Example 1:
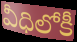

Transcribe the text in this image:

వీధిలోకీ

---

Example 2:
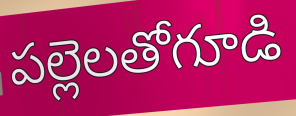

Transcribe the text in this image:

పల్లెలతోగూడి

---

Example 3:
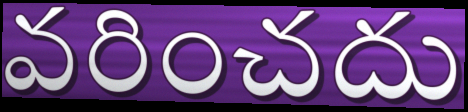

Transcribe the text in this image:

వరించదు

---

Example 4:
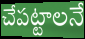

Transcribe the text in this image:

చేపట్టాలనే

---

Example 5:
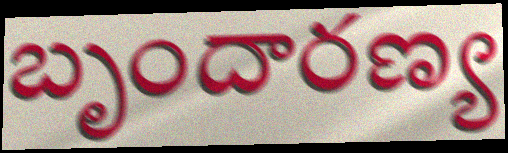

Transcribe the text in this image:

బృందారణ్య